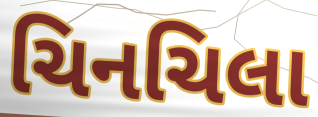
ચિનચિલા